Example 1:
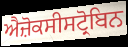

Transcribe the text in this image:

ਐਜ਼ੋਕਸੀਸਟ੍ਰੋਬਿਨ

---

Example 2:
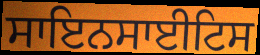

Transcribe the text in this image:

ਸਾਇਨਸਾਈਟਿਸ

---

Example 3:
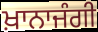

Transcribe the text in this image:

ਖ਼ਾਨਾਜੰਗੀ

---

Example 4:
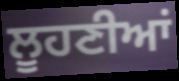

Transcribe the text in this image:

ਲੂਹਣੀਆਂ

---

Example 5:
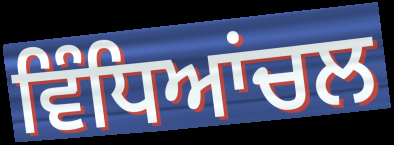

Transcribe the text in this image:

ਵਿੰਧਿਆਂਚਲ